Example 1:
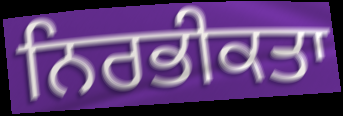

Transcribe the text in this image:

ਨਿਰਭੀਕਤਾ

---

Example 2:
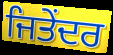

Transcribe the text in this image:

ਜਿਤੇਂਦਰ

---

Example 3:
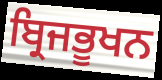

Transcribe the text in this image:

ਬ੍ਰਿਜਭੂਖਨ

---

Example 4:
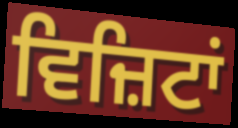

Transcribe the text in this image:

ਵਿਜ਼ਿਟਾਂ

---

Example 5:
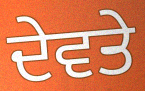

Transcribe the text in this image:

ਦੇਵਤੇ